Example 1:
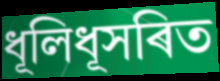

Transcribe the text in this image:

ধূলিধূসৰিত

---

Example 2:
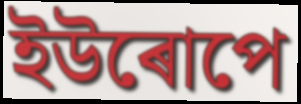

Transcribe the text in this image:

ইউৰোপে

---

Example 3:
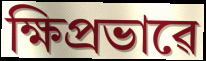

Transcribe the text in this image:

ক্ষিপ্ৰভাৱে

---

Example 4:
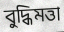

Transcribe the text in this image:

বুদ্ধিমত্তা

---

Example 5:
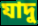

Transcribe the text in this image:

যাদু